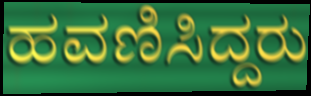
ಹವಣಿಸಿದ್ದರು